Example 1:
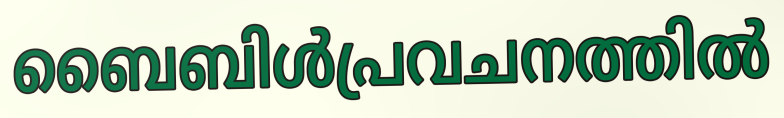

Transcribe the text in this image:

ബൈബിൾപ്രവചനത്തിൽ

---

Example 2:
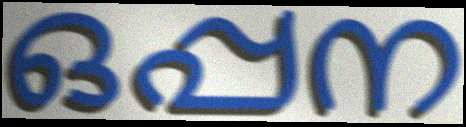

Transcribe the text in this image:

ഒപ്പന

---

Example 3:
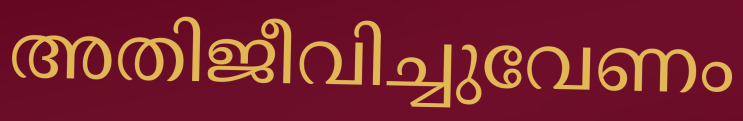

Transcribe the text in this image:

അതിജീവിച്ചുവേണം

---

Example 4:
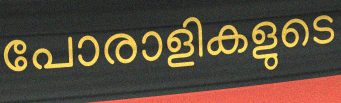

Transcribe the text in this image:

പോരാളികളുടെ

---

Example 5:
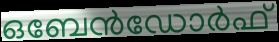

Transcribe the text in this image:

ഒബേൻഡോർഫ്